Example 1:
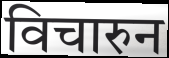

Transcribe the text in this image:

विचारुन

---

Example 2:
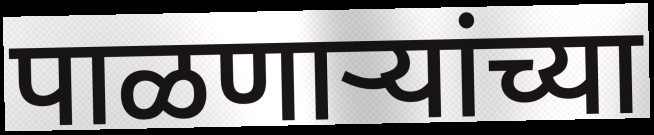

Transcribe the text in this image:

पाळणाऱ्यांच्या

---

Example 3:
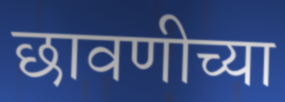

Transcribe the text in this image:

छावणीच्या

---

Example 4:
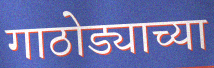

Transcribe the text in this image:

गाठोड्याच्या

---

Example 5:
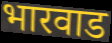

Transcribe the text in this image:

भारवाड